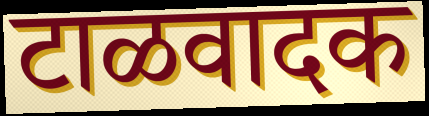
टाळवादक